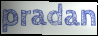
pradan